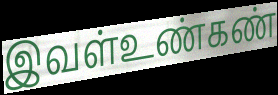
இவள்உண்கண்